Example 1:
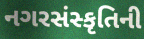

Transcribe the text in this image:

નગરસંસ્કૃતિની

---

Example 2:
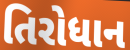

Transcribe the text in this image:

તિરોધાન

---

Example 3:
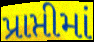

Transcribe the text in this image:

પ્રાપ્તીમાં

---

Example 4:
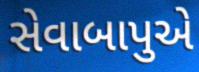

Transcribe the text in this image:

સેવાબાપુએ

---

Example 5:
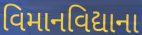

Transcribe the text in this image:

વિમાનવિદ્યાના